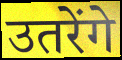
उतरेंगे